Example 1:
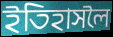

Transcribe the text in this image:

ইতিহাসলৈ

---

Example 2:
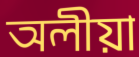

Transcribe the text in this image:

অলীয়া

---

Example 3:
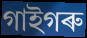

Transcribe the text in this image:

গাইগৰু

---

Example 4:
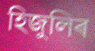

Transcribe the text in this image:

হিজুলিৰ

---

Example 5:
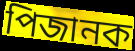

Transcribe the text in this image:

পিজানক